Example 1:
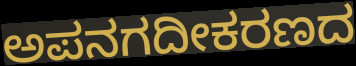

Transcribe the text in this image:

ಅಪನಗದೀಕರಣದ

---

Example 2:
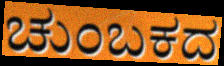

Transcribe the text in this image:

ಚುಂಬಕದ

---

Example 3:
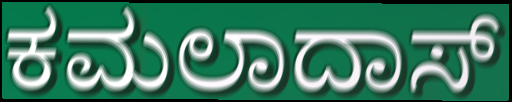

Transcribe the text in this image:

ಕಮಲಾದಾಸ್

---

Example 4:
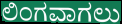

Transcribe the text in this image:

ಲಿಂಗವಾಗಲು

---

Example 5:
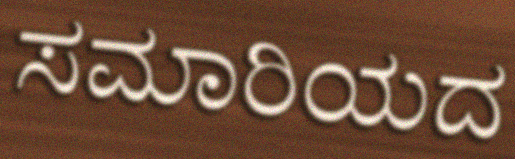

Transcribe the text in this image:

ಸಮಾರಿಯದ